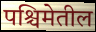
पश्चिमेतील